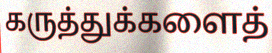
கருத்துக்களைத்